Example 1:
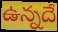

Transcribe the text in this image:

ఉన్నదే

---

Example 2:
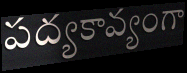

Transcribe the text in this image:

పద్యకావ్యంగా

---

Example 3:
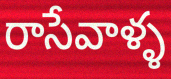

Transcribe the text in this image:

రాసేవాళ్ళ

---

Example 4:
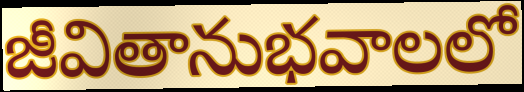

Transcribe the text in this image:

జీవితానుభవాలలో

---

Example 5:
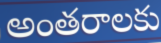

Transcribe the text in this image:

అంతరాలకు